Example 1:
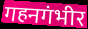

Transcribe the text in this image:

गहनगंभीर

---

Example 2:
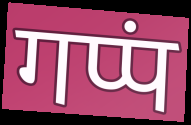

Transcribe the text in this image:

गप्पं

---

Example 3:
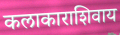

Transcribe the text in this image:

कलाकाराशिवाय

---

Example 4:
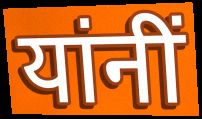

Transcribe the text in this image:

यांनीं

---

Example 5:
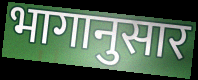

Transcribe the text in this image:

भागानुसार